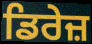
ਡਿਰੇਜ਼